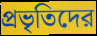
প্রভৃতিদের